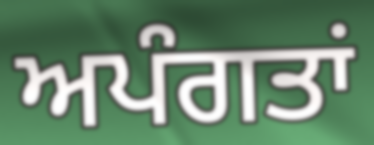
ਅਪੰਗਤਾਂ